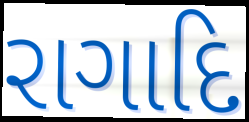
રાગાદિ